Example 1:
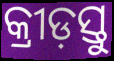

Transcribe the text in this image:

କ୍ରୀଡ଼ସ୍ତୁ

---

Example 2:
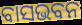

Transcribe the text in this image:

ବାସଭବନ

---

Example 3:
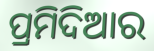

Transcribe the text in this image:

ପ୍ରମିଦିଆର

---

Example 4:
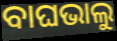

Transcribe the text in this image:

ବାଘଭାଲୁ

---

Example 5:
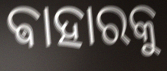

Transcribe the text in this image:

ଵାହାରକୁ